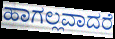
ಹಾಗಲ್ಲವಾದರೆ